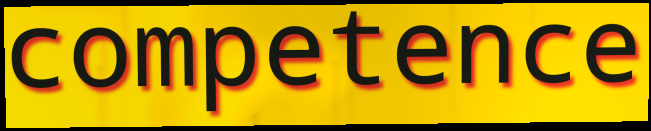
competence